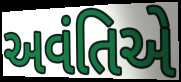
અવંતિએ